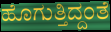
ಹೊಗುತ್ತಿದ್ದಂತೆ